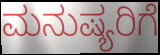
ಮನುಷ್ಯರಿಗೆ